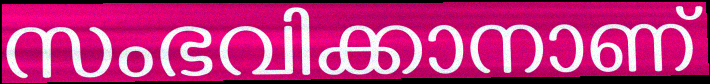
സംഭവിക്കാനാണ്